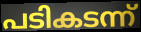
പടികടന്ന്